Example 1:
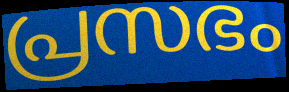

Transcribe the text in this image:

പ്രസഭം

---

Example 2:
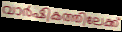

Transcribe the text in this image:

വാർഷികത്തിലേക്ക്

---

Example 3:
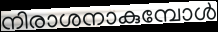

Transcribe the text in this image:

നിരാശനാകുമ്പോൾ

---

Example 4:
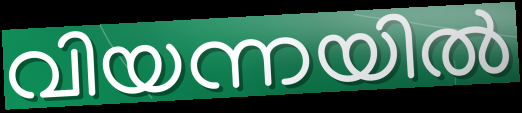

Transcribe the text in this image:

വിയന്നയിൽ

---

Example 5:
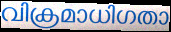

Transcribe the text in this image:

വിക്രമാധിഗതാ